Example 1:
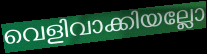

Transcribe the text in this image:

വെളിവാക്കിയല്ലോ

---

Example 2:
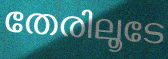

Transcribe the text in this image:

തേരിലൂടേ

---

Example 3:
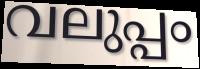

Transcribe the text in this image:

വലുപ്പം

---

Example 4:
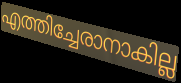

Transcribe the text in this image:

എത്തിച്ചേരാനാകില്ല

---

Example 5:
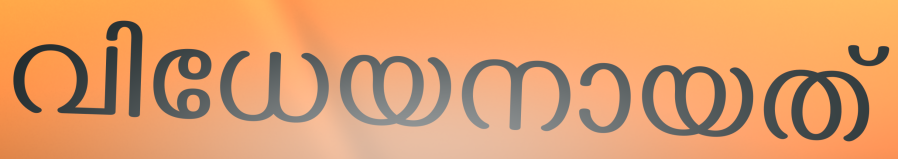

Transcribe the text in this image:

വിധേയനായത്